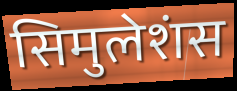
सिमुलेशंस